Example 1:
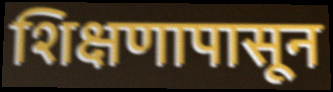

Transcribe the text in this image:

शिक्षणापासून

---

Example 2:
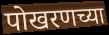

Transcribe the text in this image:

पोखरणच्या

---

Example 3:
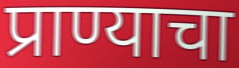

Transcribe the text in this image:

प्राण्याचा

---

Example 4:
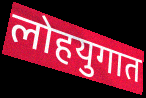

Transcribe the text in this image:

लोहयुगात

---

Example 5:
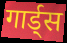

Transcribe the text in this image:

गार्ड्स